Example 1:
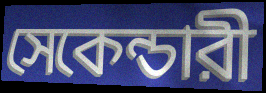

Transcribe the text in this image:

সেকেন্ডারী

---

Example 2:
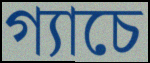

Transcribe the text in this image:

গ্যাচে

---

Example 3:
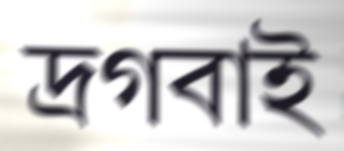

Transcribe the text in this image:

দ্রগবাই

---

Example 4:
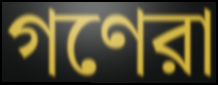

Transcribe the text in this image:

গণেরা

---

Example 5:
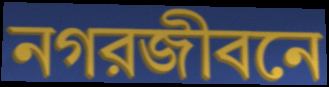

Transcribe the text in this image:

নগরজীবনে